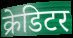
क्रेडिटर